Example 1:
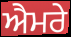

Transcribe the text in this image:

ਐਮਰੇ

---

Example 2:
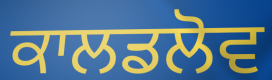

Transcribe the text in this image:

ਕਾਲਡਲੋਵ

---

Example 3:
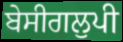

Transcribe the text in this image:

ਬੇਸੀਗਲੁਪੀ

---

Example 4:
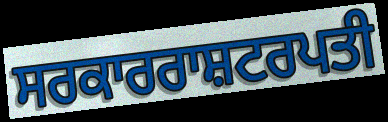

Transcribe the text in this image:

ਸਰਕਾਰਰਾਸ਼ਟਰਪਤੀ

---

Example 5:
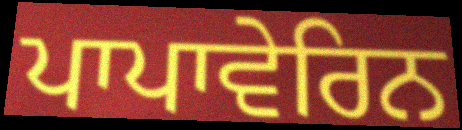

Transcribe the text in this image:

ਪਾਪਾਵੇਰਿਨ